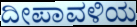
ದೀಪಾವಳಿಯ